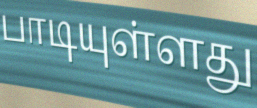
பாடியுள்ளது